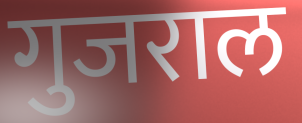
गुजराल